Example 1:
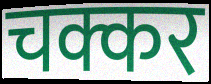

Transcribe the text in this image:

चक्‍कर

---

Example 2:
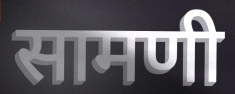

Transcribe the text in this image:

सामणी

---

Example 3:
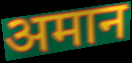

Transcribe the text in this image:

अमान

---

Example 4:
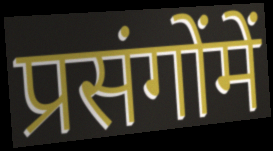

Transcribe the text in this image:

प्रसंगोंमें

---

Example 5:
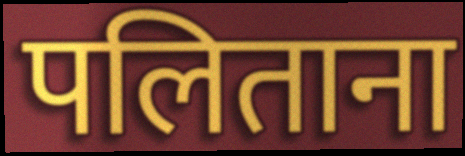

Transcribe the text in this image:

पलिताना